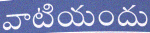
వాటియందు